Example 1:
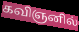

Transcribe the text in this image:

கவிஞனில்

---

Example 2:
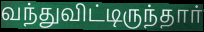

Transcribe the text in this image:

வந்துவிட்டிருந்தார்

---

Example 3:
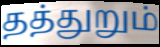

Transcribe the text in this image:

தத்துறும்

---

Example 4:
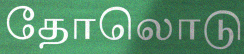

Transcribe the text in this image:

தோலொடு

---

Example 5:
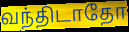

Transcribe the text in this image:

வந்திடாதோ